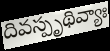
దివస్పృథివ్యాః